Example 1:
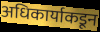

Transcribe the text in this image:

अधिकार्याकडून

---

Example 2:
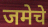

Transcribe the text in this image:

जमेचे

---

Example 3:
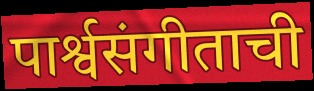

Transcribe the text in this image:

पार्श्वसंगीताची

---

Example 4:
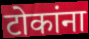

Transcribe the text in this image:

टोकांना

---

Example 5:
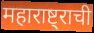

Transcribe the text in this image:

महाराष्ट्राची